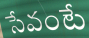
సేవంటే